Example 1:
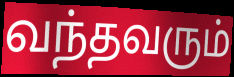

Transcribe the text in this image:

வந்தவரும்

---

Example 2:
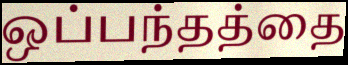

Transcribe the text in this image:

ஒப்பந்தத்தை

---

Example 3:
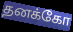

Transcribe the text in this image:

தனக்கோ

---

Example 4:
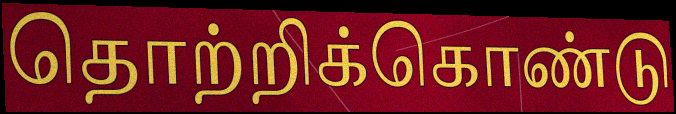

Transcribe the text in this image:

தொற்றிக்கொண்டு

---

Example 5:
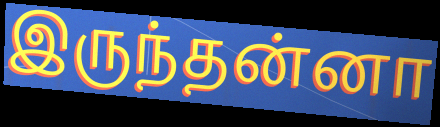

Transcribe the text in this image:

இருந்தன்னா